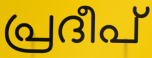
പ്രദീപ്